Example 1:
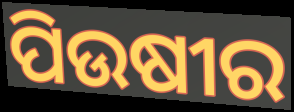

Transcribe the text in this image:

ପିଉଷୀର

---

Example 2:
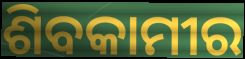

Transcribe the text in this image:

ଶିବକାମୀର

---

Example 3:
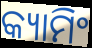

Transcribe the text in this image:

କ୍ୟାମିଂ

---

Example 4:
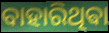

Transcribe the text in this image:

ବାହାରିଥିଵା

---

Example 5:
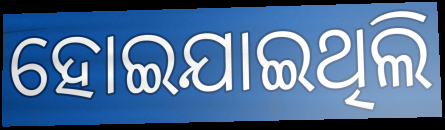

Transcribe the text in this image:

ହୋଇଯାଇଥିଲି